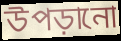
উপড়ানো